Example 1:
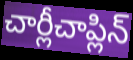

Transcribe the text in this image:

చార్లీచాప్లిన్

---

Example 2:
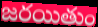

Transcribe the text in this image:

జరయితుం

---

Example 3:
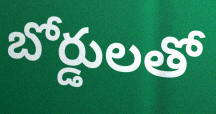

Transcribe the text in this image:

బోర్డులతో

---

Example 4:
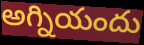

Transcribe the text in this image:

అగ్నియందు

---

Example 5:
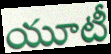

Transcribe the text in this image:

యూటీ